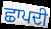
ਛਾਪਦੀ